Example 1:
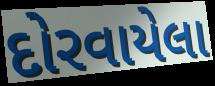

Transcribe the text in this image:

દોરવાયેલા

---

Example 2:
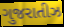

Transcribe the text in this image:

ગુજરાતીઝ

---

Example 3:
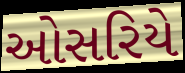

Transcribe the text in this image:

ઓસરિયે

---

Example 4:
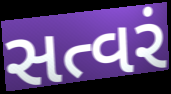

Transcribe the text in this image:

સત્વરં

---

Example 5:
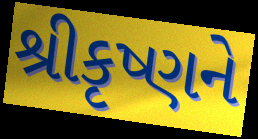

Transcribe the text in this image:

શ્રીકૃષ્ણને